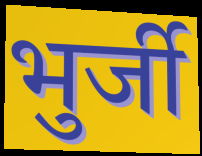
भुर्जी